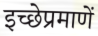
इच्छेप्रमाणें